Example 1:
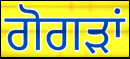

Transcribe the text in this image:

ਗੋਗੜਾਂ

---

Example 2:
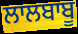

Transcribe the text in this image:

ਲਾਲਬਾਬੂ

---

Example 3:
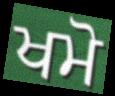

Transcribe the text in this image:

ਖਮੋ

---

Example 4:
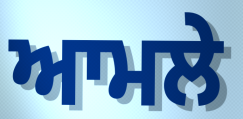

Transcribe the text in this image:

ਆਮਲੇ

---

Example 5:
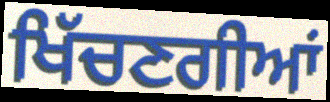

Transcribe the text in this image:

ਖਿੱਚਣਗੀਆਂ